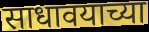
साधावयाच्या